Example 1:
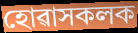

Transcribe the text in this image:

হোৱাসকলক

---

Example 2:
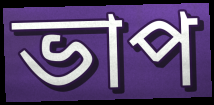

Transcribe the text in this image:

ভাপ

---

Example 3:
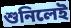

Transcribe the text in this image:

শুনিলেই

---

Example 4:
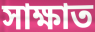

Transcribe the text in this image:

সাক্ষাত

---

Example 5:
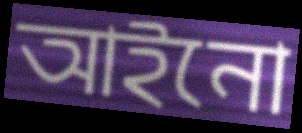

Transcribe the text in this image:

আইনো